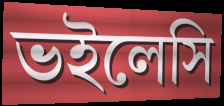
ভইলেসি